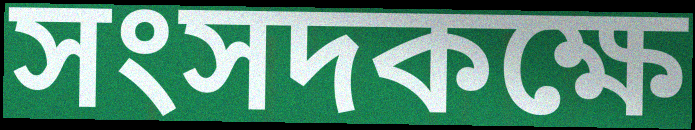
সংসদকক্ষে